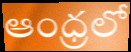
ఆంధ్రలో